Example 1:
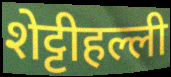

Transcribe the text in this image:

शेट्टीहल्ली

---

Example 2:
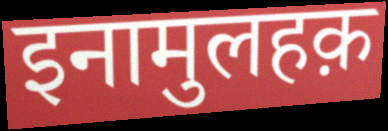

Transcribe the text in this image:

इनामुलहक़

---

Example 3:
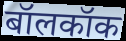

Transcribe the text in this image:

बॉलकॉक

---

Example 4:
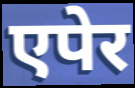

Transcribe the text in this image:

एपेर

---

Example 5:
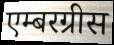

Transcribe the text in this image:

एम्बरग्रीस